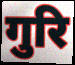
गुरि